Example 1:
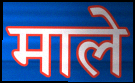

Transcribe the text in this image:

माले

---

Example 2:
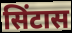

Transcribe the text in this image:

सिंटास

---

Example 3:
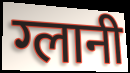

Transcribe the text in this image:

ग्लानी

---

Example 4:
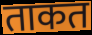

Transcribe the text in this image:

ताकत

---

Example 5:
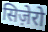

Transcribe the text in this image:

सिज़ेरो